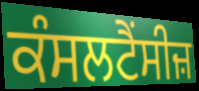
ਕੰਸਲਟੈਂਸੀਜ਼